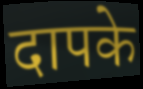
दापके